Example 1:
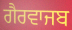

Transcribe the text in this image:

ਗੈਰਵਾਜਬ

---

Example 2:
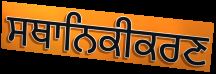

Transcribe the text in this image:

ਸਥਾਨਿਕੀਕਰਣ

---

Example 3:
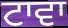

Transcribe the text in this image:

ਟਾਵਾ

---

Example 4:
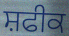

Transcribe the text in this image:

ਸ਼ਫੀਕ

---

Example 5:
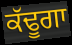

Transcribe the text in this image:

ਕੱਢੂਗਾ